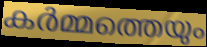
കർമ്മത്തെയും